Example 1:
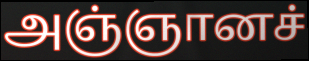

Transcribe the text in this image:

அஞ்ஞானச்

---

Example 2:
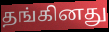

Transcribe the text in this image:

தங்கினது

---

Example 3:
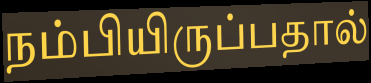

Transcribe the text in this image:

நம்பியிருப்பதால்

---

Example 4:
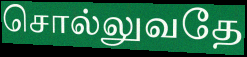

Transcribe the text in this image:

சொல்லுவதே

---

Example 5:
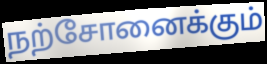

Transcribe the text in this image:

நற்சோனைக்கும்